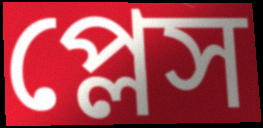
প্লেস